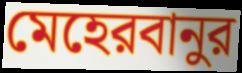
মেহেরবানুর